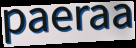
paeraa